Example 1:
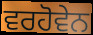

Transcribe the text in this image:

ਵਰਹੋਵੇਨ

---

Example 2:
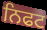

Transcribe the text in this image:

ਨਿਫਟ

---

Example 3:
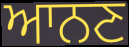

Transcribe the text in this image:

ਆਨਣ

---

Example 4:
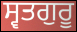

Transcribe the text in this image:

ਸ੍ਵਤਗੁਰੂ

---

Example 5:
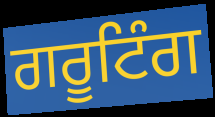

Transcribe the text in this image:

ਗਰੂਟਿੰਗ